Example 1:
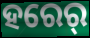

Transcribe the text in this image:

ହରେର୍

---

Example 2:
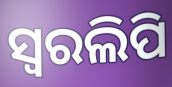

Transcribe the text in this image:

ସ୍ଵରଲିପି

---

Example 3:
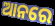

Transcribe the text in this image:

ଆନରେ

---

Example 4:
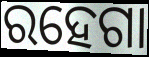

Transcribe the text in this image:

ରହେଗା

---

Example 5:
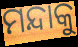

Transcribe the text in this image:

ମନ୍ଦାକୁ